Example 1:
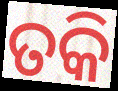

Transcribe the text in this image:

ତକି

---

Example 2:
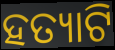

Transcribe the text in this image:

ହତ୍ୟାଟି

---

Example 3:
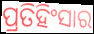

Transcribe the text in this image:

ପ୍ରତିହିଂସାର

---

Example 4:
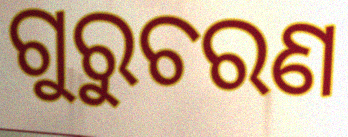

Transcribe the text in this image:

ଗୁରୁଚରଣ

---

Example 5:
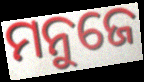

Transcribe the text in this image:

ମନୁଜେ